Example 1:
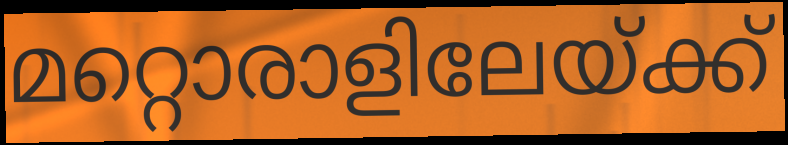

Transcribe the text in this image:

മറ്റൊരാളിലേയ്ക്ക്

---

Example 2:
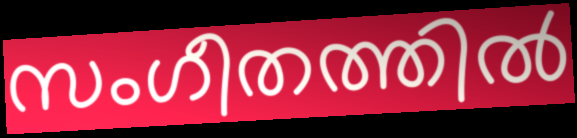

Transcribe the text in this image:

സംഗീതത്തിൽ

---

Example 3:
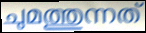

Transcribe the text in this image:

ചുമത്തുന്നത്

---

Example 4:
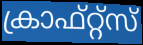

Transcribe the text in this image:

ക്രാഫ്റ്റ്സ്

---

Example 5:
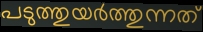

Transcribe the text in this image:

പടുത്തുയർത്തുന്നത്